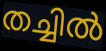
തച്ചിൽ